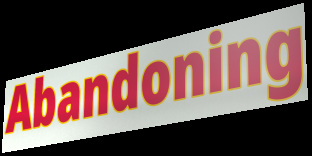
Abandoning